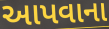
આપવાના